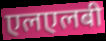
एलएलबी